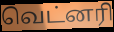
வெட்னரி